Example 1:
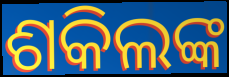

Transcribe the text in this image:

ଶକିଲଙ୍କ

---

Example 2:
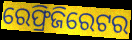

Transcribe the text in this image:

ରେଫ୍ରିଜିରେଟର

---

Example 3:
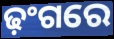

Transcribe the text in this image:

ଢ଼ଂଗରେ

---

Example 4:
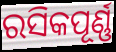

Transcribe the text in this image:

ରସିକପୂର୍ଣ୍ଣ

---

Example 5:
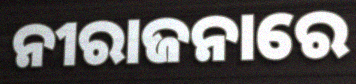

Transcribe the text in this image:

ନୀରାଜନାରେ